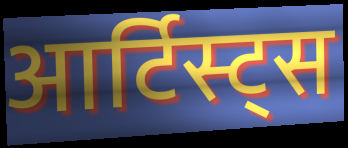
आर्टिस्ट्स